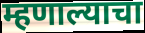
म्हणाल्याचा